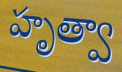
హృత్వా